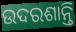
ଉଦରଶାନ୍ତି